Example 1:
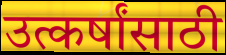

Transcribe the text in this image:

उत्कर्षांसाठी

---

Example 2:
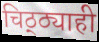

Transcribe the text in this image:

चिठ्ठ्याही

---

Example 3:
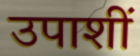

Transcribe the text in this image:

उपाशीं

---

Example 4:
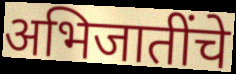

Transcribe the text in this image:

अभिजातींचे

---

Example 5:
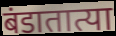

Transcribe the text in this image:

बंडातात्या